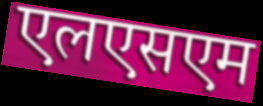
एलएसएम